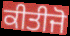
ਕੀਤੀਜੋ